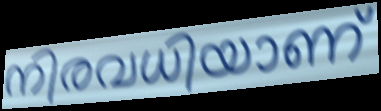
നിരവധിയാണ്